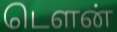
டௌன்